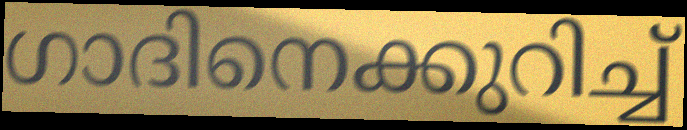
ഗാദിനെക്കുറിച്ച്